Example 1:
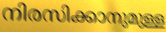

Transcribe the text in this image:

നിരസിക്കാനുമുള്ള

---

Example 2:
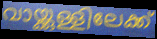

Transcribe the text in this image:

വായ്ക്കുള്ളിലേക്ക്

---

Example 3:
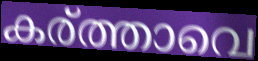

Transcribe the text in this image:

കര്ത്താവെ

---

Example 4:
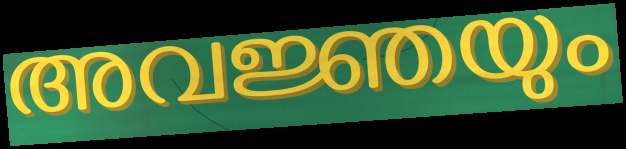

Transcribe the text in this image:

അവജ്ഞയും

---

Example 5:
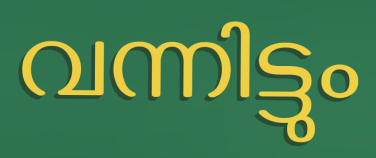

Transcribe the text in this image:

വന്നിട്ടും